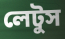
লেটুস